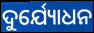
ଦୁର୍ଯ୍ୟୋଧନ